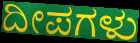
ದೀಪಗಳು